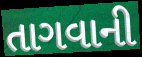
તાગવાની